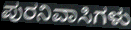
ಪುರನಿವಾಸಿಗಳು